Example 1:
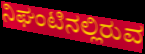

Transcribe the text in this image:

ನಿಘಂಟಿನಲ್ಲಿರುವ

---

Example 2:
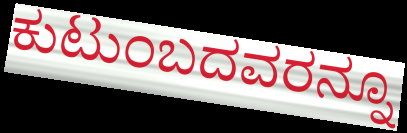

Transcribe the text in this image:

ಕುಟುಂಬದವರನ್ನೂ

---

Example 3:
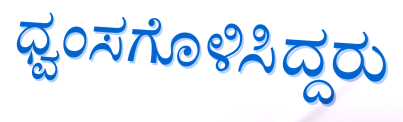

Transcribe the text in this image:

ಧ್ವಂಸಗೊಳಿಸಿದ್ದರು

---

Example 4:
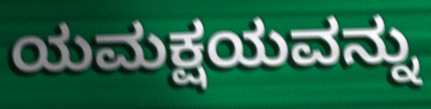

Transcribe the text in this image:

ಯಮಕ್ಷಯವನ್ನು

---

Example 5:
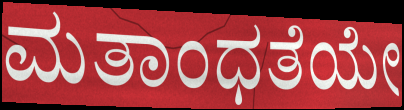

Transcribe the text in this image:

ಮತಾಂಧತೆಯೇ